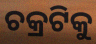
ଚକ୍ରଟିକୁ